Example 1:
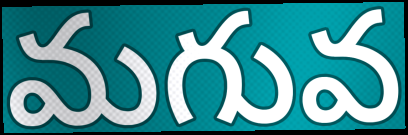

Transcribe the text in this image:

మగువ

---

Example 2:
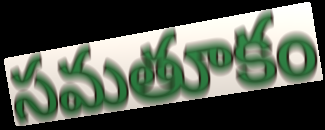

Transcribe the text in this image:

సమతూకం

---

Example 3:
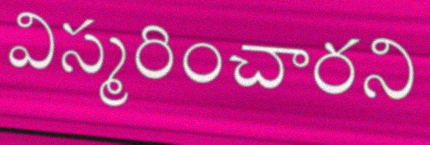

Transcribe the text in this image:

విస్మరించారని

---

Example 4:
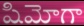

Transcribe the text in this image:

షిమోగా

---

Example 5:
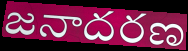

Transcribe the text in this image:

జనాదరణ